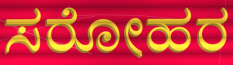
ಸರೋಹರ